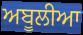
ਅਬੂਲੀਆ